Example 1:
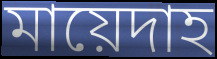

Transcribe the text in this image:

মায়েদাহ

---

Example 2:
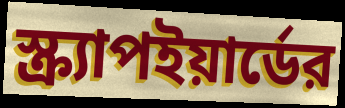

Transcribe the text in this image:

স্ক্র্যাপইয়ার্ডের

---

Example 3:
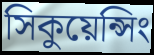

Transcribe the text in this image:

সিকুয়েন্সিং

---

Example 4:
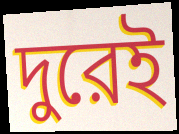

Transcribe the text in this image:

দুরেই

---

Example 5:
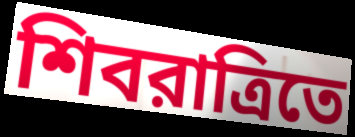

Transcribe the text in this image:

শিবরাত্রিতে